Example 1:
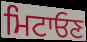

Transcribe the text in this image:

ਮਿਟਾਓਣ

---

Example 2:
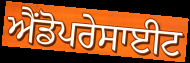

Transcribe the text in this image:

ਐਂਡੋਪਰੇਸਾਈਟ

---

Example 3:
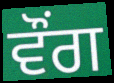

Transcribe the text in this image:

ਵੌਂਗ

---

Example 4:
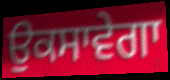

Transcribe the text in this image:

ਉਕਸਾਵੇਗਾ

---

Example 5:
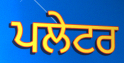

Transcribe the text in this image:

ਪਲੇਟਰ